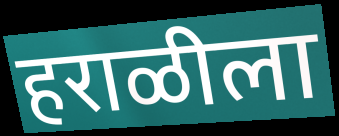
हराळीला